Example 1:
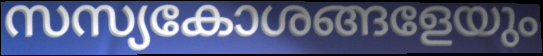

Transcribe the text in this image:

സസ്യകോശങ്ങളേയും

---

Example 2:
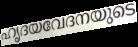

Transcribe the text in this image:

ഹൃദയവേദനയുടെ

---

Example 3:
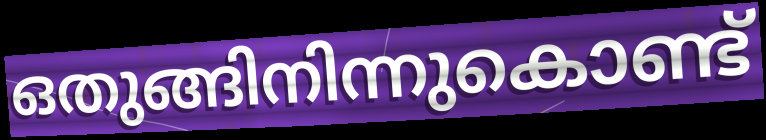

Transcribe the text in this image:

ഒതുങ്ങിനിന്നുകൊണ്ട്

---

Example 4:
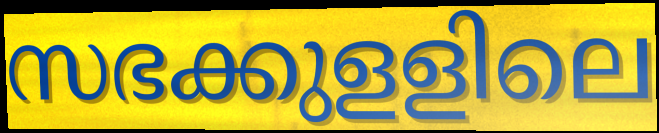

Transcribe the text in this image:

സഭക്കുളളിലെ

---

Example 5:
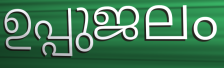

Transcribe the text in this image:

ഉപ്പുജലം